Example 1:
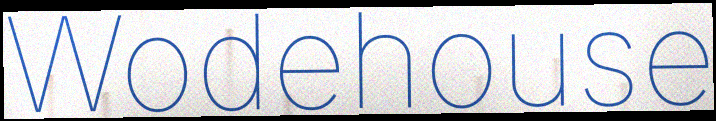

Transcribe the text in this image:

Wodehouse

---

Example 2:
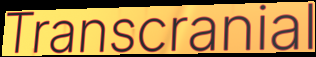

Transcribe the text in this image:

Transcranial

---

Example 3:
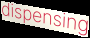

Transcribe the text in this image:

dispensing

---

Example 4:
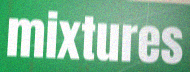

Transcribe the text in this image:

mixtures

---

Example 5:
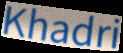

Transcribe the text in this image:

Khadri